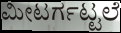
ಮೀಟರ್ಗಟ್ಟಲೆ